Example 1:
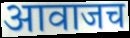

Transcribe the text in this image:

आवाजच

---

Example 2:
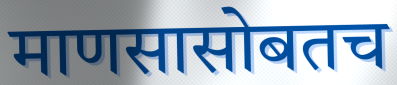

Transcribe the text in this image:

माणसासोबतच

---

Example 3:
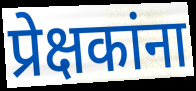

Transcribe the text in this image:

प्रेक्षकांना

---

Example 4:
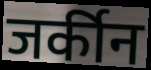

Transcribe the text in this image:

जर्कीन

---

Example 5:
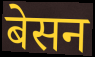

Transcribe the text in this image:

बेसन